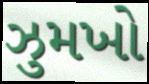
ઝુમખો